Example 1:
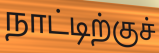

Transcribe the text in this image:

நாட்டிற்குச்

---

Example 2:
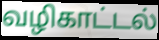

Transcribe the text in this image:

வழிகாட்டல்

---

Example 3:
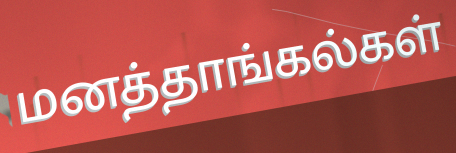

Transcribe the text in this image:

மனத்தாங்கல்கள்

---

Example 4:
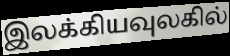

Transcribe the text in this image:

இலக்கியவுலகில்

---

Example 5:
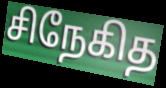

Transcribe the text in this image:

சிநேகித